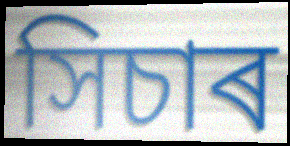
সিচাৰ